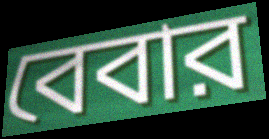
বেবার